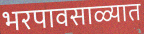
भरपावसाळ्यात